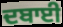
ਦਬਾਈ